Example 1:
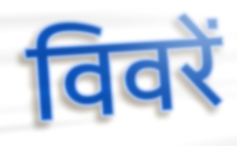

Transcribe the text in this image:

विवरें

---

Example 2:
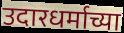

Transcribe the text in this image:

उदारधर्माच्या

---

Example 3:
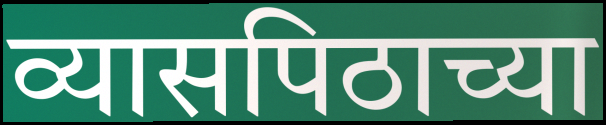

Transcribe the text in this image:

व्यासपिठाच्या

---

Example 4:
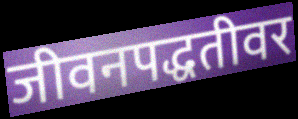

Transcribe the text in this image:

जीवनपद्धतीवर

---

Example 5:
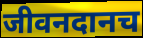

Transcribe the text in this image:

जीवनदानच